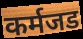
कर्मजड